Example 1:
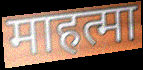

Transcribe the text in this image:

माहत्मा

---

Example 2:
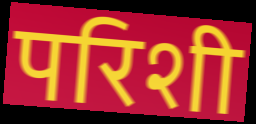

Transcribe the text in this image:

परिशी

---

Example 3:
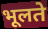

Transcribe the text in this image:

भूलते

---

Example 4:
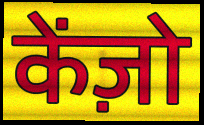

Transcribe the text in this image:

केंज़ो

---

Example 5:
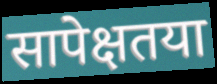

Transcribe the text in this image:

सापेक्षतया